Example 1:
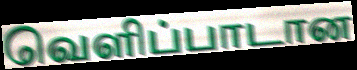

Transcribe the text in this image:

வெளிப்பாடான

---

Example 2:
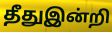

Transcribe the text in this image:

தீதுஇன்றி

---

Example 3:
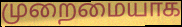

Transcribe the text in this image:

முறைமையாக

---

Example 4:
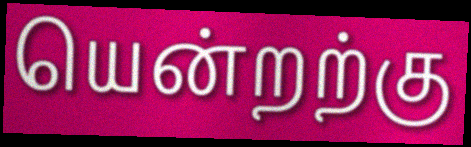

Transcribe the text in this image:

யென்றற்கு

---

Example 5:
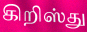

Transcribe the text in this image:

கிறிஸ்து